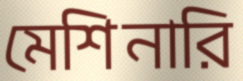
মেশিনারি